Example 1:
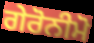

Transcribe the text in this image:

ਗੇਰੋਨੀਮੋ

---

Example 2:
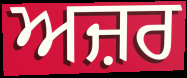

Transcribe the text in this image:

ਅਜ਼ਰ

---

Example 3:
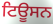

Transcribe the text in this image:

ਟਿਊਸਨ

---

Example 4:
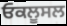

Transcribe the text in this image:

ਓਕਲੂਸਲ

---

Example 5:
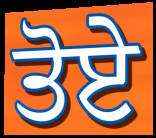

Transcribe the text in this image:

ਤੋਏ